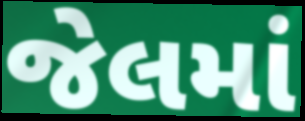
જેલમાં